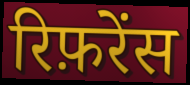
रिफ़रेंस